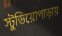
স্টুডিয়োপাড়ায়